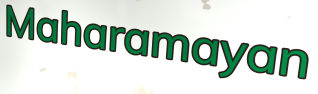
Maharamayan